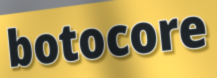
botocore